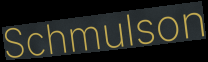
Schmulson